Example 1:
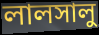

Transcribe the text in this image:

লালসালু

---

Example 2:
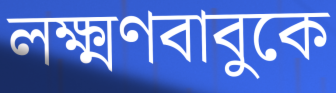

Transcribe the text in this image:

লক্ষ্মণবাবুকে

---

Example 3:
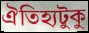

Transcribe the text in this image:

ঐতিহ্যটুকু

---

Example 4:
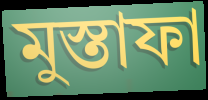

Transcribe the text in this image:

মুস্তাফা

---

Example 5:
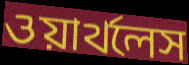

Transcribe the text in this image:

ওয়ার্থলেস